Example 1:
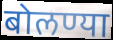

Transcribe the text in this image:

बोलण्या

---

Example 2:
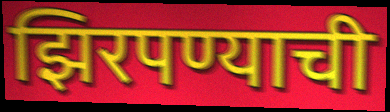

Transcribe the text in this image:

झिरपण्याची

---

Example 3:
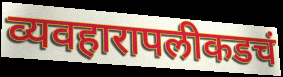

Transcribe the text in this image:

व्यवहारापलीकडचं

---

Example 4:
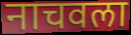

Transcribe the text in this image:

नाचवला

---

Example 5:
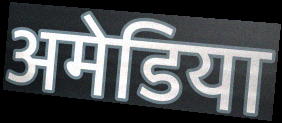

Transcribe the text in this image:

अमेडिया